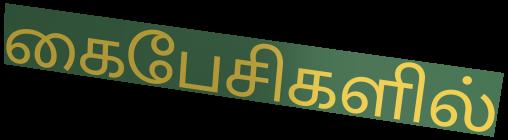
கைபேசிகளில்